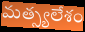
మత్స్యలేశం